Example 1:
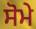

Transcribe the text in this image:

ਸੋਮੇ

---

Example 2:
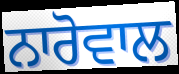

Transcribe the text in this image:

ਨਾਰੋਵਾਲ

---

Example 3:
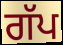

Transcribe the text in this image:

ਗੱਪ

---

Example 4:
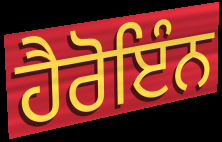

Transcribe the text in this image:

ਹੈਰੋਇੰਨ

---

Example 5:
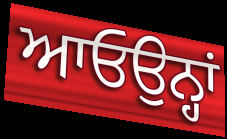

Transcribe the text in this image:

ਆਓਉਨ੍ਹਾਂ